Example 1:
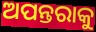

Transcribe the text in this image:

ଅପନ୍ତରାକୁ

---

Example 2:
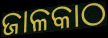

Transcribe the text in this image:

ଜାଳକାଠ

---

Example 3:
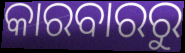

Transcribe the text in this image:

କାରବାରରୁ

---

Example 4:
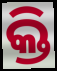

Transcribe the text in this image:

କ୍ତି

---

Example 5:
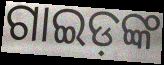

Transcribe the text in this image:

ଗାଇଡ଼ଙ୍କ